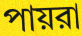
পায়রা